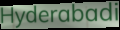
Hyderabadi